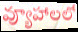
వ్యూహాలలో